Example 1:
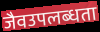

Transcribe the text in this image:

जैवउपलब्धता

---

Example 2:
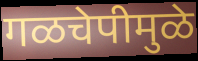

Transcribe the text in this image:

गळचेपीमुळे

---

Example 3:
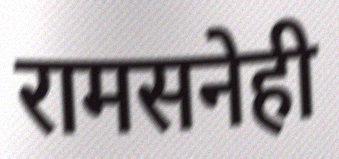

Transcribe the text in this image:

रामसनेही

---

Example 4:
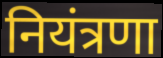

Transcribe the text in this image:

नियंत्रणा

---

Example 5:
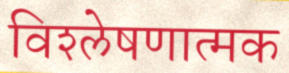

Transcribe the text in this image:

विश्लेषणात्मक